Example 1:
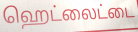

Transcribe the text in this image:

ஹெட்லைட்டை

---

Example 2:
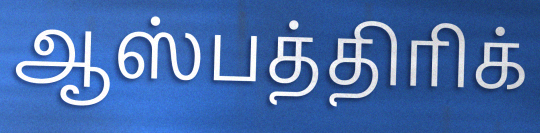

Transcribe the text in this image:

ஆஸ்பத்திரிக்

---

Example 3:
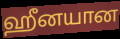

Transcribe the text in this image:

ஹீனயான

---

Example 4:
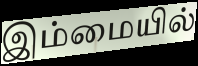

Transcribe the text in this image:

இம்மையில்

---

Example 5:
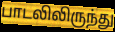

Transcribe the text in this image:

பாடலிலிருந்து